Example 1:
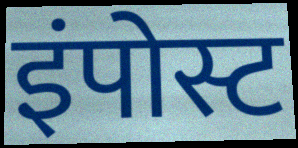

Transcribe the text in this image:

इंपोस्ट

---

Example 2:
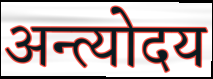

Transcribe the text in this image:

अन्त्योदय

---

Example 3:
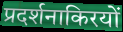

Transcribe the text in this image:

प्रदर्शनाकिरयों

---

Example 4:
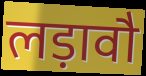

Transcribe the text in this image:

लड़ावौ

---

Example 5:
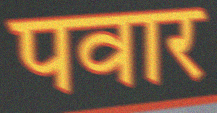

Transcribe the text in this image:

पवार